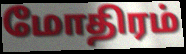
மோதிரம்